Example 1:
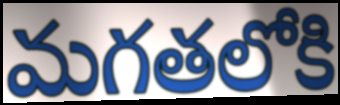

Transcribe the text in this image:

మగతలోకి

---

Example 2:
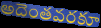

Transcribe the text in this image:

అదెంతవరకూ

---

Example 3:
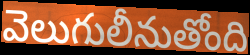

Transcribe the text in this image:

వెలుగులీనుతోంది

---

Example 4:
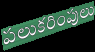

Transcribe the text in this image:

పలుకరింపులు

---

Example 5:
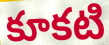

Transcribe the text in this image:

కూకటి